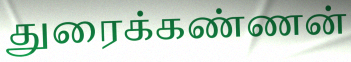
துரைக்கண்ணன்